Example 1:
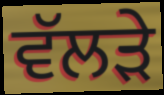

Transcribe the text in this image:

ਵੱਲੜੇ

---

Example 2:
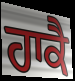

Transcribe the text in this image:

ਹਾਕੈ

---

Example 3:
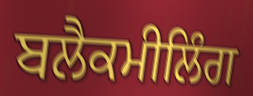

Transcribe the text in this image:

ਬਲੈਕਮੀਲਿੰਗ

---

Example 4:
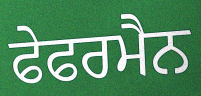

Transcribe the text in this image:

ਫੇਫਰਮੈਨ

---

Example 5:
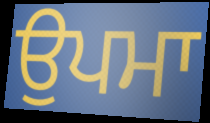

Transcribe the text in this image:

ਉਪਮਾ